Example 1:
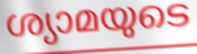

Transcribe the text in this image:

ശ്യാമയുടെ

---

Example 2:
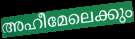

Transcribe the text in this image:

അഹീമേലെക്കും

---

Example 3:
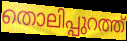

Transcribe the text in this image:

തൊലിപ്പുറത്ത്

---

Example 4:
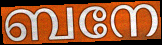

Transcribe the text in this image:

ബനേ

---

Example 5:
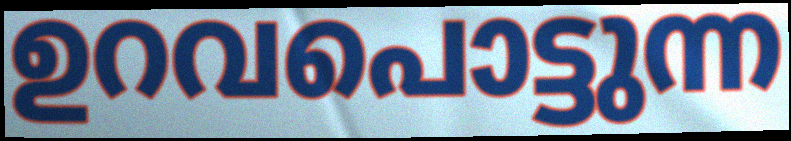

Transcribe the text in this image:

ഉറവപൊട്ടുന്ന